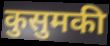
कुसुमकी